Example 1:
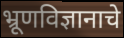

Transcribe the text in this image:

भ्रूणविज्ञानाचे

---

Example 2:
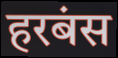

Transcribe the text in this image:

हरबंस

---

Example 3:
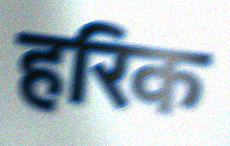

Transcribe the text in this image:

हरिक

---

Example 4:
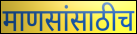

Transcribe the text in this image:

माणसांसाठीच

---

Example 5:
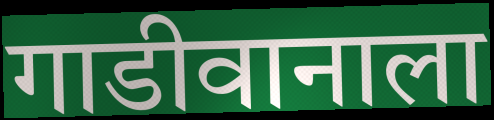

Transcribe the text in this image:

गाडीवानाला